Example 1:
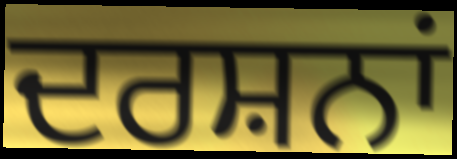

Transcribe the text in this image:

ਦਰਸ਼ਨਾਂ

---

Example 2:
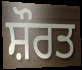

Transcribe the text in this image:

ਸ਼ੌਰਤ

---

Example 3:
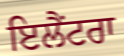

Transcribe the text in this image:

ਇਲੈਂਟਰਾ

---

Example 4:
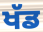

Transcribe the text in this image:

ਖੱਡ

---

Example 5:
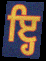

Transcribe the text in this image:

ਇ੍ਹ